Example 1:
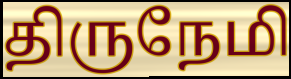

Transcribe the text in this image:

திருநேமி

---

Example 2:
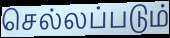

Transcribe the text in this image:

செல்லப்படும்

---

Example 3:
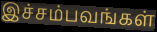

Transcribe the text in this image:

இச்சம்பவங்கள்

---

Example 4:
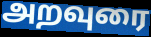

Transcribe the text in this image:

அறவுரை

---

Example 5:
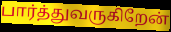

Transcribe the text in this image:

பார்த்துவருகிறேன்